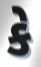
કે